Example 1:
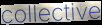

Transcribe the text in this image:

collective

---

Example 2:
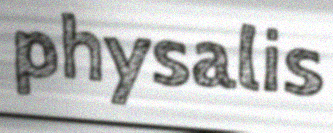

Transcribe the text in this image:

physalis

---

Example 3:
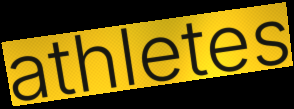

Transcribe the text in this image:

athletes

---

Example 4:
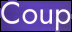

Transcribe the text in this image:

Coup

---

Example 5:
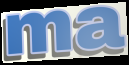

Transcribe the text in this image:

ma